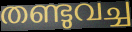
തണ്ടുവച്ച